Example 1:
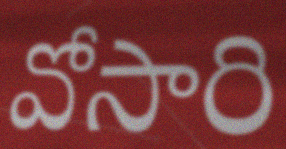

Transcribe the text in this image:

వోసారి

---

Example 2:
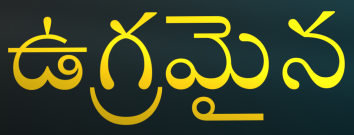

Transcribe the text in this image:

ఉగ్రమైన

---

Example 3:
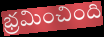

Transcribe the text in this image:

భ్రమించింది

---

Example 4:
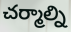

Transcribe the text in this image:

చర్మాల్ని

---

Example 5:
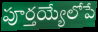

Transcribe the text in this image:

పూర్తయ్యేలోపే